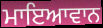
ਮਾਇਆਵਾਨ